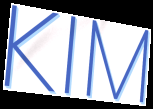
KIM